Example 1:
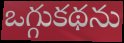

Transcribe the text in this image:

ఒగ్గుకథను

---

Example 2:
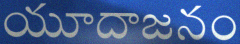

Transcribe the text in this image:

యూదాజనం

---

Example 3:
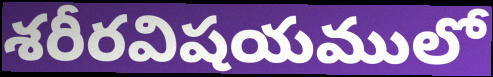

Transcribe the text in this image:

శరీరవిషయములో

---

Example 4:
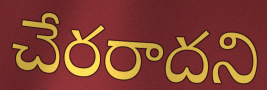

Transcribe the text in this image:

చేరరాదని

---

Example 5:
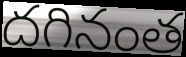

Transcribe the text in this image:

దగినంత